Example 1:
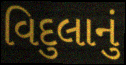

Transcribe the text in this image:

વિદુલાનું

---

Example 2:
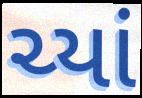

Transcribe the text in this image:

ચ્યાં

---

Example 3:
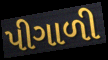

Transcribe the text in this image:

પીગાળી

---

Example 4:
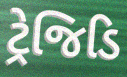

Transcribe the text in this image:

ટ્રેજિડિ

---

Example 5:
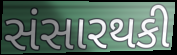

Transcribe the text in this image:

સંસારથકી